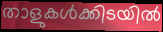
താളുകൾക്കിടയിൽ